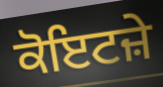
ਕੋਇਟਜ਼ੇ